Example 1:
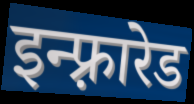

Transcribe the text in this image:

इन्फ़्रारेड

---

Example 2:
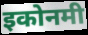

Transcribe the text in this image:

इकोनमी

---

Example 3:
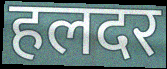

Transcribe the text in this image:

हलदर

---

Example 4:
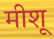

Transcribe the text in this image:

मीशू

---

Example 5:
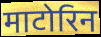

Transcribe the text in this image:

माटोरिन